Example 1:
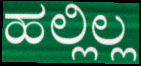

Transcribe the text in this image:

ಹಲ್ಲಿಲ್ಲ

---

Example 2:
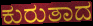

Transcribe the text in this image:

ಕುರುತಾದ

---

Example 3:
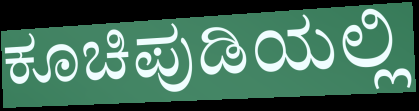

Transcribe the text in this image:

ಕೂಚಿಪುಡಿಯಲ್ಲಿ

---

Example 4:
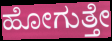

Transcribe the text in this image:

ಹೋಗುತ್ತೇ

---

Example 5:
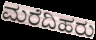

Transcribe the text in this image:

ಮರೆದಿಹರು